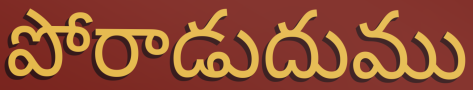
పోరాడుదుము